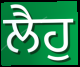
ਲੈਹੁ